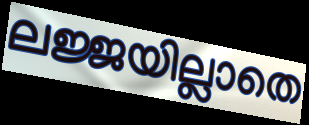
ലജ്ജയില്ലാതെ